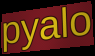
pyalo